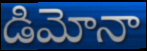
డిమోనా